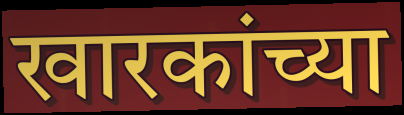
खारकांच्या